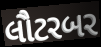
લૌટરબર